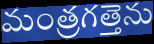
మంత్రగత్తెను